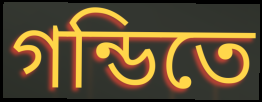
গন্ডিতে